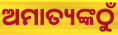
ଅମାତ୍ୟଙ୍କଠୁଁ